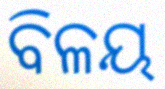
ବିଳୟ